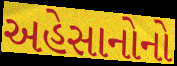
અહેસાનોનો